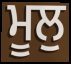
ਮੂਲੁ